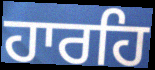
ਹਾਰਹਿ